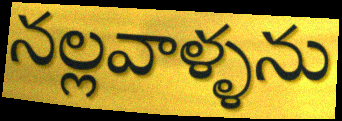
నల్లవాళ్ళను